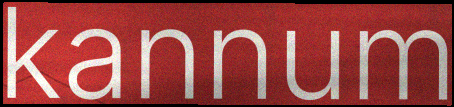
kannum